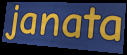
janata